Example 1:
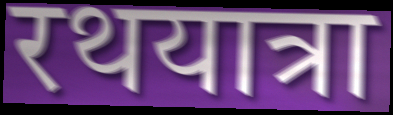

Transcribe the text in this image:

रथयात्रा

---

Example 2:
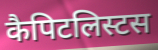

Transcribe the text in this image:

कैपिटलिस्टस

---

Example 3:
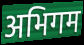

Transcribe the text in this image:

अभिगम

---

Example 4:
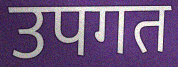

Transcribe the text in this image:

उपगत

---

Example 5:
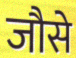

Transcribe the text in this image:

जौसे